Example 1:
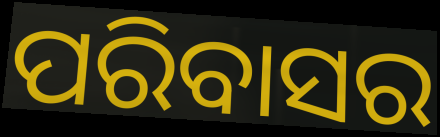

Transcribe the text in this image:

ପରିବାସର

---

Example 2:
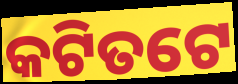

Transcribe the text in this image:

କଟିତଟେ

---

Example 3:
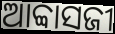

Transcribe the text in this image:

ଆବ୍ବାସଜୀ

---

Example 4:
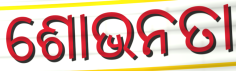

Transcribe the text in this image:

ଶୋଭନତା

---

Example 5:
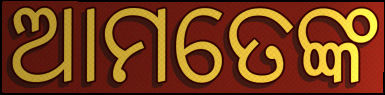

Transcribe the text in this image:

ଆମତେଙ୍କ